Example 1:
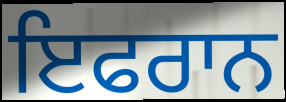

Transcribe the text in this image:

ਇਫਰਾਨ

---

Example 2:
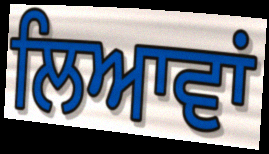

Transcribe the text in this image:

ਲਿਆਵਾਂ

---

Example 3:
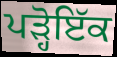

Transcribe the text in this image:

ਪੜ੍ਹੋਇੱਕ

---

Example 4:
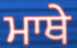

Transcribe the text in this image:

ਮਾਥੇ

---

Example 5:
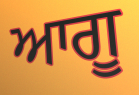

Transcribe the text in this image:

ਆਗੂ